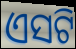
ଏସଟି